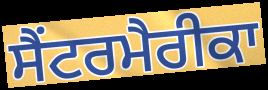
ਸੈਂਟਰਮੈਰੀਕਾ